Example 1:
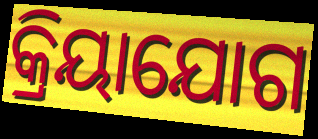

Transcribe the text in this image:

କ୍ରିୟାଯୋଗ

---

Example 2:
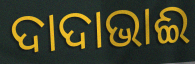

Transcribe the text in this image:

ଦାଦାଭାଈ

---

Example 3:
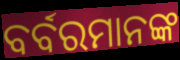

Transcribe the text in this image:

ବର୍ବରମାନଙ୍କ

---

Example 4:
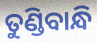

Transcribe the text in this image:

ତୁଣ୍ଡିବାନ୍ଧି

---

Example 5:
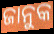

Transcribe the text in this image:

ଜାନୁକ